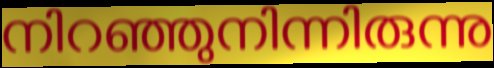
നിറഞ്ഞുനിന്നിരുന്നു